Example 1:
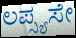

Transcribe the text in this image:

ಲಪ್ಸ್ಯಸೇ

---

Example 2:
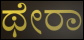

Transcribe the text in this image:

ಥೇರಾ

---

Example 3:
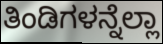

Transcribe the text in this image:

ತಿಂಡಿಗಳನ್ನೆಲ್ಲಾ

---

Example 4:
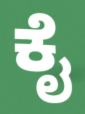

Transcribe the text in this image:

ಕೈ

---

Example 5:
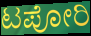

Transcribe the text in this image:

ಟಪೋರಿ